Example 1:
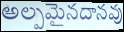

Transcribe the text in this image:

అల్పమైనదానవు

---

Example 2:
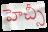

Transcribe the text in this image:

హెచ్సీ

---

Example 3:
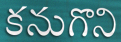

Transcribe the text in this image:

కనుగొని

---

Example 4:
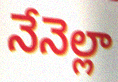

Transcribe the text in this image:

నేనెల్లా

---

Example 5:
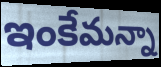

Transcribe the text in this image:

ఇంకేమన్నా